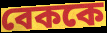
বেককে